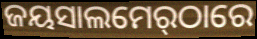
ଜୟସାଲମେର୍‌ଠାରେ